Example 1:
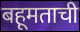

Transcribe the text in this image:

बहूमताची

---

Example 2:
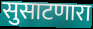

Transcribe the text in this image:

सुसाटणारा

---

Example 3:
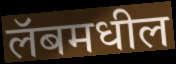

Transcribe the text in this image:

लॅबमधील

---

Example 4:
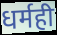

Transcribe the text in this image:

धर्मही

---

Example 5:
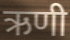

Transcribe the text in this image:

ऋणी